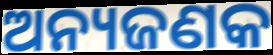
ଅନ୍ୟଜଣକ